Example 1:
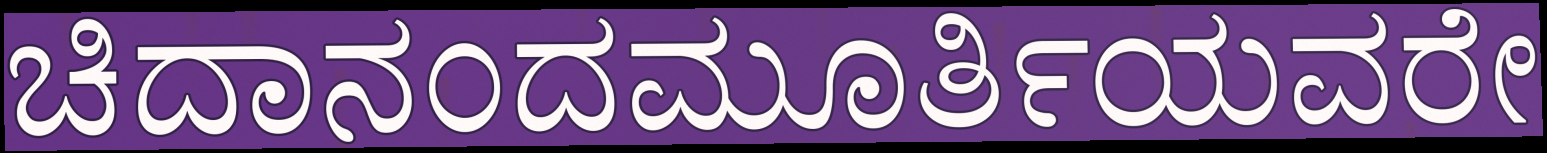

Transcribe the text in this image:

ಚಿದಾನಂದಮೂರ್ತಿಯವರೇ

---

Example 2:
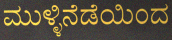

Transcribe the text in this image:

ಮುಳ್ಳಿನೆಡೆಯಿಂದ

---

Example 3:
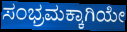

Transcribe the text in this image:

ಸಂಭ್ರಮಕ್ಕಾಗಿಯೇ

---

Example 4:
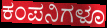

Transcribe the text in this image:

ಕಂಪನಿಗಳೂ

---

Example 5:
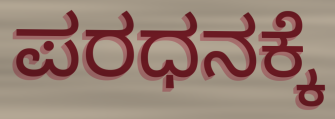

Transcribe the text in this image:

ಪರಧನಕ್ಕೆ